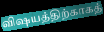
விஷயத்திற்காகத்